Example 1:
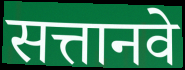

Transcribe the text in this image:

सत्तानवे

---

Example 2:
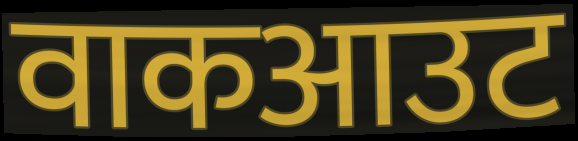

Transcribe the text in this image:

वाकआउट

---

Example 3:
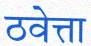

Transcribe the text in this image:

ठवेत्ता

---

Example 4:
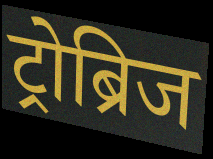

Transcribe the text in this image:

ट्रोब्रिज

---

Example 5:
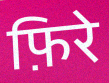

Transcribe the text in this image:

फ़िरे